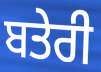
ਬਤੇਰੀ